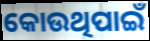
କୋଉଥିପାଇଁ